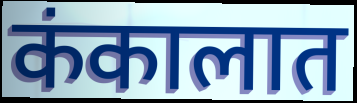
कंकालात